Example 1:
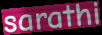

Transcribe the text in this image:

sarathi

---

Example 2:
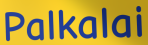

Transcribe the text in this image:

Palkalai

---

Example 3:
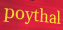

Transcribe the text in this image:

poythal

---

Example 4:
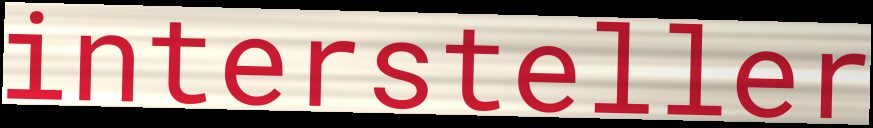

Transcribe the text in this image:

intersteller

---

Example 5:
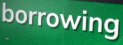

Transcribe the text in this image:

borrowing